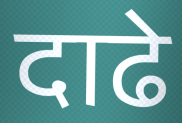
दाढे